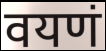
वयणं